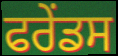
ਫਰੇਂਡਸ